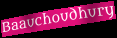
Baauchoudhury